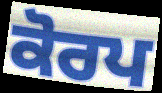
ਕੋਰਪ